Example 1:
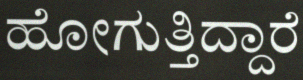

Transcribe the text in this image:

ಹೋಗುತ್ತಿದ್ದಾರೆ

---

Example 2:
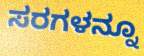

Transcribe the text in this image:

ಸರಗಳನ್ನೂ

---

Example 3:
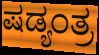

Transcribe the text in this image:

ಷಡ್ಯಂತ್ರ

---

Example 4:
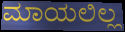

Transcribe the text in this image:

ಮಾಯಲಿಲ್ಲ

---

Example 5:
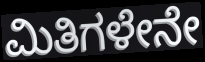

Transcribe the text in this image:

ಮಿತಿಗಳೇನೇ